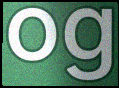
og